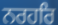
ਨਰਹਰਿ